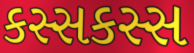
કસ્સકસ્સ